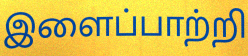
இளைப்பாற்றி